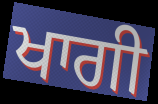
ਖਾਗੀ